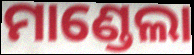
ମାଣ୍ଡେଲା